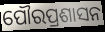
ପୌରପ୍ରଶାସନ